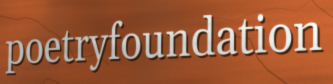
poetryfoundation